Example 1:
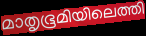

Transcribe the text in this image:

മാതൃഭൂമിയിലെത്തി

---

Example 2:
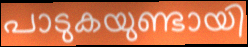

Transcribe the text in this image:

പാടുകയുണ്ടായി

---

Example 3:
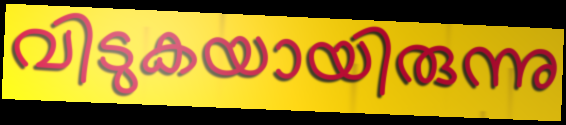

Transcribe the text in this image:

വിടുകയായിരുന്നു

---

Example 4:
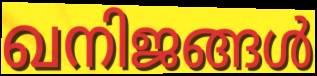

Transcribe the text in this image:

ഖനിജങ്ങൾ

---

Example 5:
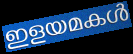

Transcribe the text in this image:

ഇളയമകൾ